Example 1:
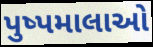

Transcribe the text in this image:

પુષ્પમાલાઓ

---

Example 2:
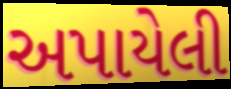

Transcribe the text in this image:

અપાયેલી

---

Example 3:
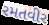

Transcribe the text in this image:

રમતવીર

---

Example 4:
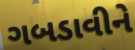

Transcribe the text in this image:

ગબડાવીને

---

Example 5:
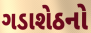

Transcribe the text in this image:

ગડાશેઠનો